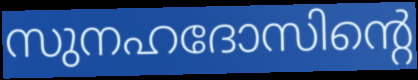
സുനഹദോസിന്റെ